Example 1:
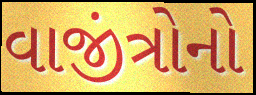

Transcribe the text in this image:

વાજીંત્રોનો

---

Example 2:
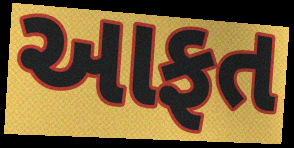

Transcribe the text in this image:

આફત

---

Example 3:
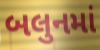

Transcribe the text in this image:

બલુનમાં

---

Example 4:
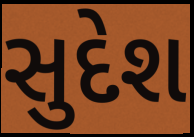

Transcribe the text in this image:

સુદેશ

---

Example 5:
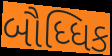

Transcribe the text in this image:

બૌધ્ધિક